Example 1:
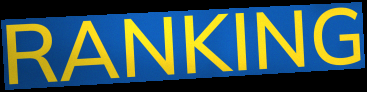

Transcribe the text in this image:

RANKING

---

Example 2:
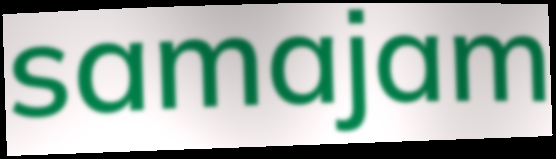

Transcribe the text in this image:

samajam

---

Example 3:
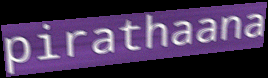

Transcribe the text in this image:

pirathaana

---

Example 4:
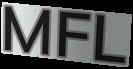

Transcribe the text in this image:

MFL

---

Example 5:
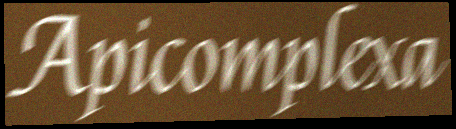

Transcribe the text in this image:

Apicomplexa